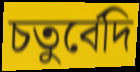
চতুর্বেদি